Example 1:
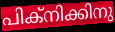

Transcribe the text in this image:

പിക്നിക്കിനു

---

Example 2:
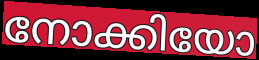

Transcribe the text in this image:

നോക്കിയോ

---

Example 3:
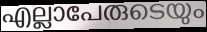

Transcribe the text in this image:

എല്ലാപേരുടെയും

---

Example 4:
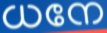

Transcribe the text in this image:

ധനേ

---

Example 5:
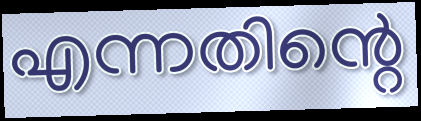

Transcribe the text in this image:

എന്നതിന്റെ